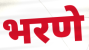
भरणे